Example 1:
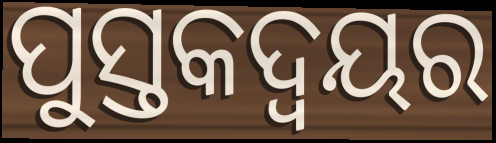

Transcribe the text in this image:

ପୁସ୍ତକଦ୍ୱୟର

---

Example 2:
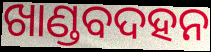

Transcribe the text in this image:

ଖାଣ୍ଡବଦହନ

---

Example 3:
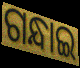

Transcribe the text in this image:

ଗନ୍ଧାଇ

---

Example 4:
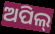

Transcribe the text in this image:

ଅପିଲ୍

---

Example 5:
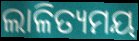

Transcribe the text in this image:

ଲାଳିତ୍ୟମୟ